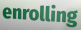
enrolling